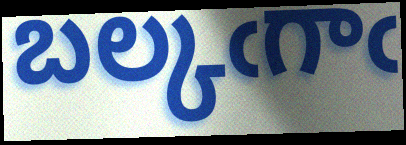
బల్కఁగాఁ